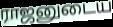
ராஜனுடைய